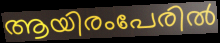
ആയിരംപേരിൽ